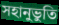
সহানুভুতি